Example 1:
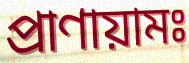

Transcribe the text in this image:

প্রাণায়ামঃ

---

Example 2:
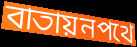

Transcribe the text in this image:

বাতায়নপথে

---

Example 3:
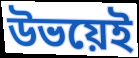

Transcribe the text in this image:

উভয়েই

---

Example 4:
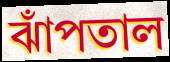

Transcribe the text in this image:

ঝাঁপতাল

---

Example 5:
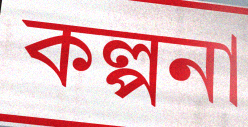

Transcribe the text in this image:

কল্পনা